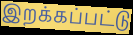
இறக்கப்பட்டு